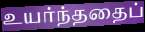
உயர்ந்ததைப்